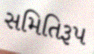
સમિતિરૂપ